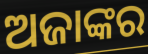
ଅଜାଙ୍କର